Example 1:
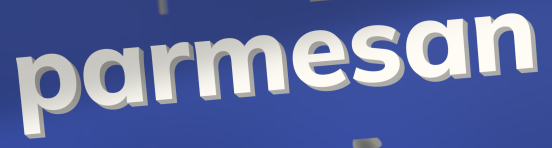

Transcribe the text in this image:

parmesan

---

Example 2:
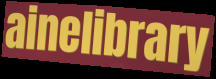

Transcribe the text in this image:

ainelibrary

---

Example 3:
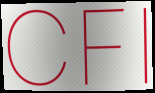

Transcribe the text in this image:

CFI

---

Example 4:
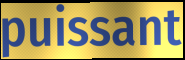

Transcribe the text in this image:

puissant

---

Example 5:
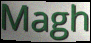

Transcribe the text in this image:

Magh